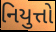
નિયુત્તો